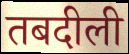
तबदीली